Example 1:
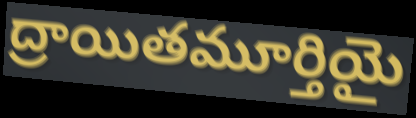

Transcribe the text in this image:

ద్రాయితమూర్తియై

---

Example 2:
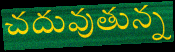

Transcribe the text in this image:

చదువుతున్న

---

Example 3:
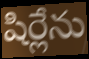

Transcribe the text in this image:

షిర్లేను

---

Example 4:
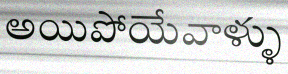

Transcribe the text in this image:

అయిపోయేవాళ్ళు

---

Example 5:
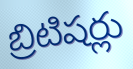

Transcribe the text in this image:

బ్రిటిషర్లు